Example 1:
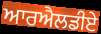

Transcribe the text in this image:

ਆਰਐਲਡੀਏ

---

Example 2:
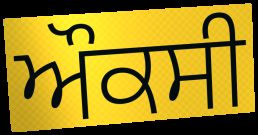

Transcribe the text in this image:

ਔਕਸੀ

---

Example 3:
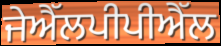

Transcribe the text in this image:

ਜੇਐੱਲਪੀਪੀਐੱਲ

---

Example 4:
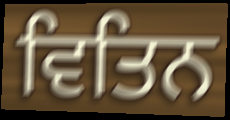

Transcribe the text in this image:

ਵਿਤਿਨ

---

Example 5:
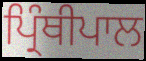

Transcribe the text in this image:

ਪ੍ਰਿੰਥੀਪਾਲ